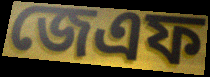
জেএফ